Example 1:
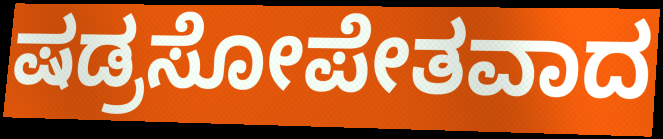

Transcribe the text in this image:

ಷಡ್ರಸೋಪೇತವಾದ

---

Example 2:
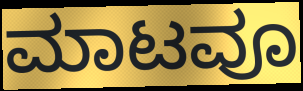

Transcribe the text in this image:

ಮಾಟವೂ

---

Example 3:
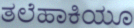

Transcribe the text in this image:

ತಲೆಹಾಕಿಯೂ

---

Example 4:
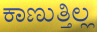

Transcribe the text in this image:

ಕಾಣುತ್ತಿಲ್ಲ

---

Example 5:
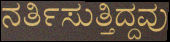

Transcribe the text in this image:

ನರ್ತಿಸುತ್ತಿದ್ದವು